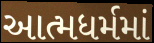
આત્મધર્મમાં